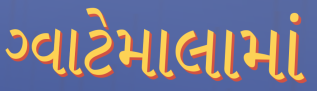
ગ્વાટેમાલામાં